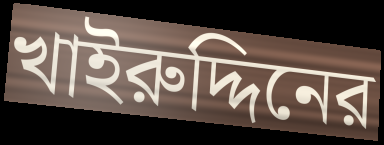
খাইরুদ্দিনের